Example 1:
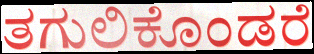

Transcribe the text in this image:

ತಗುಲಿಕೊಂಡರೆ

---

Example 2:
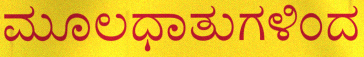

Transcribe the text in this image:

ಮೂಲಧಾತುಗಳಿಂದ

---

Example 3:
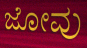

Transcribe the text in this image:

ಜೋವು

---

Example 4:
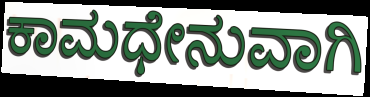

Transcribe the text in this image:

ಕಾಮಧೇನುವಾಗಿ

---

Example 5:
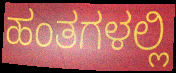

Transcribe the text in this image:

ಹಂತಗಳಲ್ಲಿ